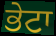
ਭੇਟਾ